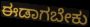
ಈಡಾಗಬೇಕು